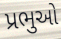
પ્રભુઓ